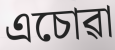
এচোৱা